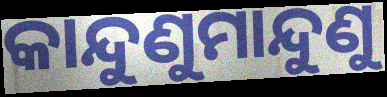
କାନ୍ଦୁଣୁମାନ୍ଦୁଣୁ